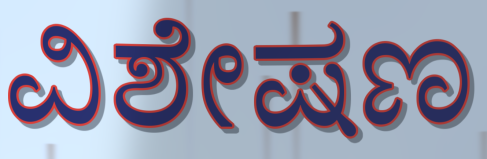
ವಿಶೇಷಣ